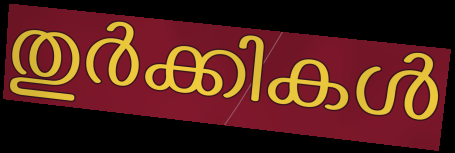
തുർക്കികൾ